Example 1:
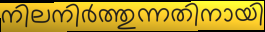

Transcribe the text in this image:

നിലനിർത്തുന്നതിനായി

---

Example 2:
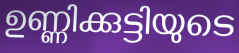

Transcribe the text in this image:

ഉണ്ണിക്കുട്ടിയുടെ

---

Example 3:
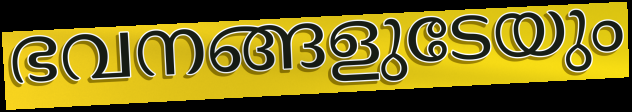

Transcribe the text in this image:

ഭവനങ്ങളുടേയും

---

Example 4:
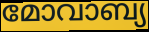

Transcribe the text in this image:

മോവാബ്യ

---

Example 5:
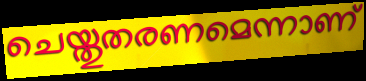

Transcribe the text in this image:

ചെയ്തുതരണമെന്നാണ്